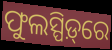
ଫୁଲସ୍ପିଡ଼୍‌ରେ